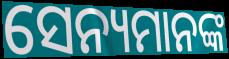
ସେନ୍ୟମାନଙ୍କ